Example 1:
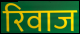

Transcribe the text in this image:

रिवाज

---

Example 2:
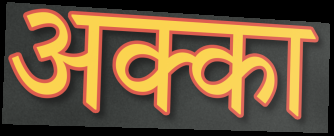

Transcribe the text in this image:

अक्का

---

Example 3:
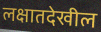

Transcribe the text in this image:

लक्षातदेखील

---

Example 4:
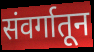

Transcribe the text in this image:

संवर्गातून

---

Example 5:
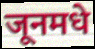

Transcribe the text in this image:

जूनमधे